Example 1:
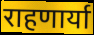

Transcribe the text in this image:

राहणार्या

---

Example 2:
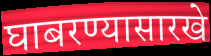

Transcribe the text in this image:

घाबरण्यासारखे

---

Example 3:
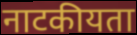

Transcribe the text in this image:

नाटकीयता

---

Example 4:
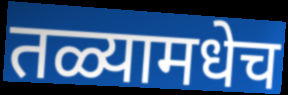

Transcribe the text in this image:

तळ्यामधेच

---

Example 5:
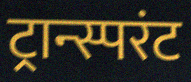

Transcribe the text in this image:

ट्रान्स्परंट